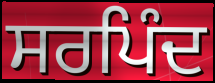
ਸਰਪਿੰਦ